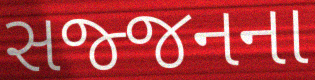
સજ્જનના